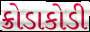
ક્રોડાકોડી